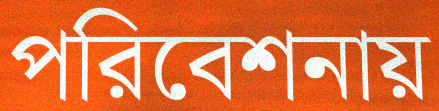
পরিবেশনায়